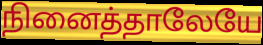
நினைத்தாலேயே